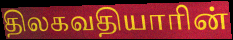
திலகவதியாரின்